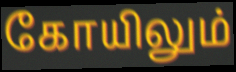
கோயிலும்